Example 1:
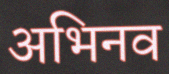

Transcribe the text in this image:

अभिनव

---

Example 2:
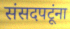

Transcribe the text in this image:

संसदपटूंना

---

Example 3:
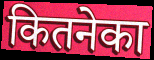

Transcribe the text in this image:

कितनेका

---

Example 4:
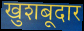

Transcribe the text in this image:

खुशबूदार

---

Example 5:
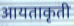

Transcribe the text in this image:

आयताकृती